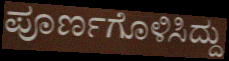
ಪೂರ್ಣಗೊಳಿಸಿದ್ದು